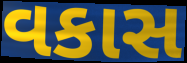
વકાસ